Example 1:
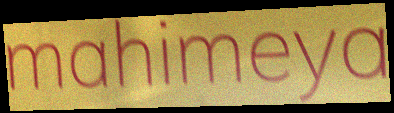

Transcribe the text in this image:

mahimeya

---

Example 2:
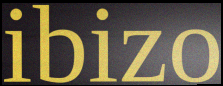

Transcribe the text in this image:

ibizo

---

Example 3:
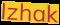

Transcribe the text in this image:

Izhak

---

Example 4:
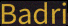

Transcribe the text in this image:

Badri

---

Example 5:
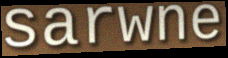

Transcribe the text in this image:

sarwne